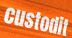
custodit